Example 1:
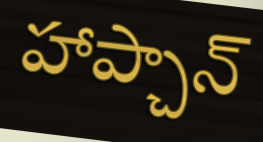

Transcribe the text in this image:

హాప్చాన్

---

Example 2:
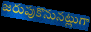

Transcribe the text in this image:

జరుపుకొనునట్లుగా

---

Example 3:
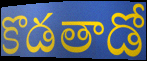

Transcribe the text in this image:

కొడతాడో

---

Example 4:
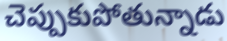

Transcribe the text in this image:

చెప్పుకుపోతున్నాడు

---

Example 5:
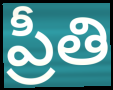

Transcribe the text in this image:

ప్రీతి